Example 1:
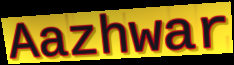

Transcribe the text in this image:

Aazhwar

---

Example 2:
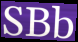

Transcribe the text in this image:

SBb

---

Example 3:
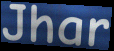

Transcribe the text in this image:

Jhar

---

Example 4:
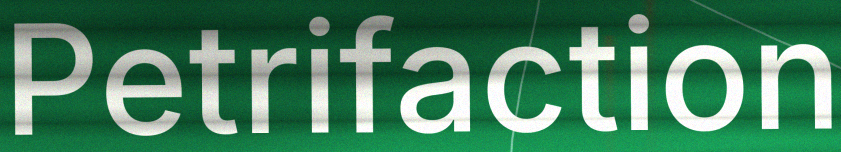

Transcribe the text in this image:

Petrifaction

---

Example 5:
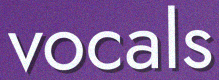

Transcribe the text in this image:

vocals